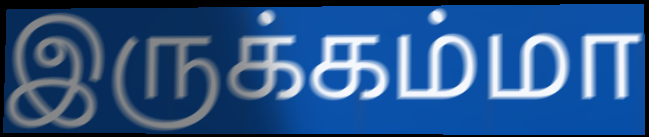
இருக்கம்மா